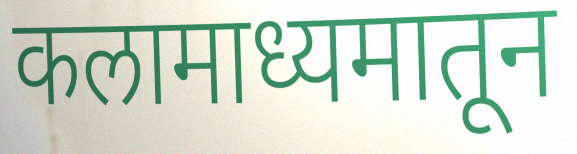
कलामाध्यमातून